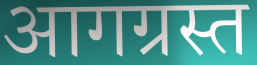
आगग्रस्त